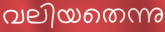
വലിയതെന്നു